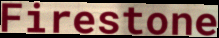
Firestone